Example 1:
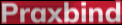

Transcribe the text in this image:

Praxbind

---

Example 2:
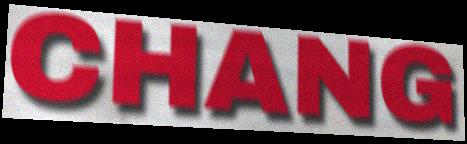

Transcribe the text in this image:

CHANG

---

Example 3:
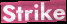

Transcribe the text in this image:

Strike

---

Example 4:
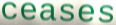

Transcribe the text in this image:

ceases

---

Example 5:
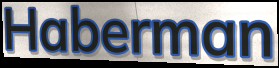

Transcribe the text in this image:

Haberman